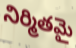
నిర్మితమై